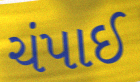
ચંપાઈ